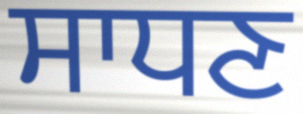
ਸਾਧਣ